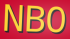
NBO